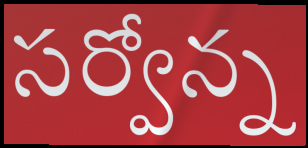
సర్వోన్న